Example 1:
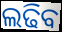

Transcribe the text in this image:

ଲଢିବ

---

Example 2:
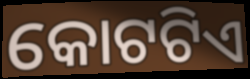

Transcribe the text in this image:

କୋଟଟିଏ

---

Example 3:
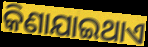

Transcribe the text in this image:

କିଣାଯାଇଥାଏ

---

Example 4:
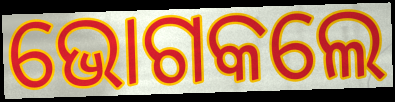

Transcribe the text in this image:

ଭୋଗକଲେ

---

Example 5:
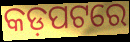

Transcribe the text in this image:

କଡ଼ପଟରେ